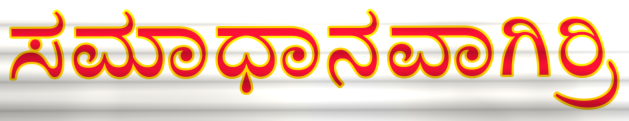
ಸಮಾಧಾನವಾಗಿರ್ರಿ